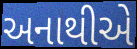
અનાથીએ